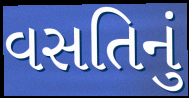
વસતિનું